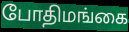
போதிமங்கை